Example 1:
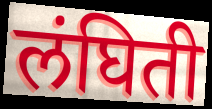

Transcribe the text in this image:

लंघिती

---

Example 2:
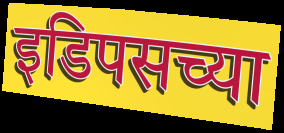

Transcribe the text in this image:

इडिपसच्या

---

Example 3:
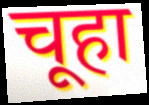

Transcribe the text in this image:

चूहा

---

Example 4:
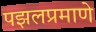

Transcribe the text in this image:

पझलप्रमाणे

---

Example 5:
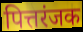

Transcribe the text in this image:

पित्तरंजक